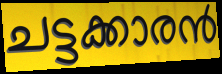
ചട്ടക്കാരൻ